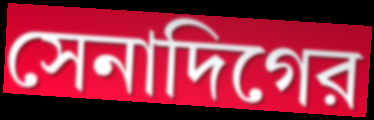
সেনাদিগের